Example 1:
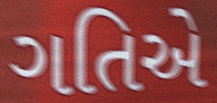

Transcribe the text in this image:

ગતિએ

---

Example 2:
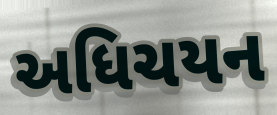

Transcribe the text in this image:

અધિચયન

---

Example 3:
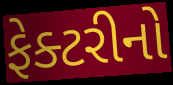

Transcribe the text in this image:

ફેક્ટરીનો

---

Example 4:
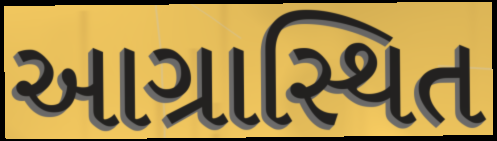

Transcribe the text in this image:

આગ્રાસ્થિત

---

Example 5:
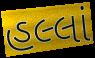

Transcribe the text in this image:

હલ્લાં